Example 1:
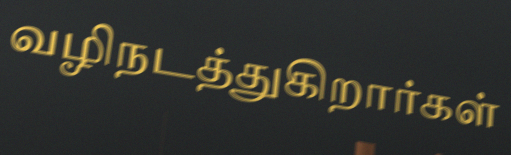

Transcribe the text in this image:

வழிநடத்துகிறார்கள்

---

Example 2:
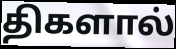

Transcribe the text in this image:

திகளால்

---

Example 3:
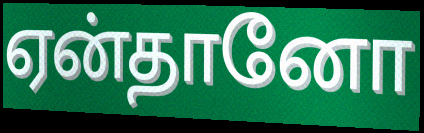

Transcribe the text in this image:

ஏன்தானோ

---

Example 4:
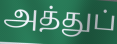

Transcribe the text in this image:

அத்துப்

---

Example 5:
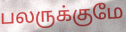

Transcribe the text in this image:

பலருக்குமே